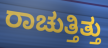
ರಾಚುತ್ತಿತ್ತು